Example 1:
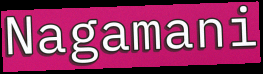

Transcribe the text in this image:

Nagamani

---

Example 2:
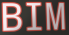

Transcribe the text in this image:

BIM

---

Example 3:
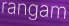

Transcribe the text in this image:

rangam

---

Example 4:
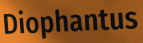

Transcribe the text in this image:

Diophantus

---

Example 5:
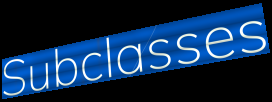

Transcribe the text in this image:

Subclasses